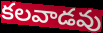
కలవాడవు